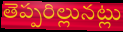
తెప్పరిల్లునట్లు